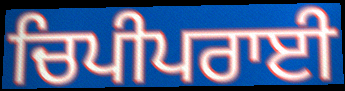
ਚਿਪੀਪਰਾਈ